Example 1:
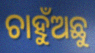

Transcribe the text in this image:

ଚାହୁଁଅଛୁ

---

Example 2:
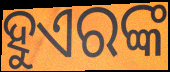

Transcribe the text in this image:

ହୁଏରଙ୍କ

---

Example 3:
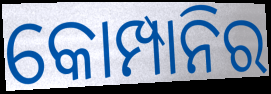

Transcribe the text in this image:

କୋମ୍ପାନିର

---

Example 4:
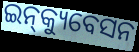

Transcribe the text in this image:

ଇନ୍‌କ୍ୟୁବେସନ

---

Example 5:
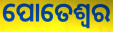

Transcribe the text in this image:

ପୋତେଶ୍ବର